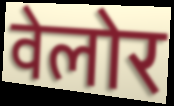
वेलोर